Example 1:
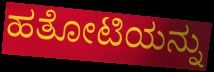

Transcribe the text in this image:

ಹತೋಟಿಯನ್ನು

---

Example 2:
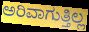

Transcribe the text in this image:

ಅರಿವಾಗುತ್ತಿಲ್ಲ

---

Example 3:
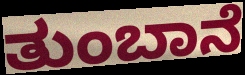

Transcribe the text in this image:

ತುಂಬಾನೆ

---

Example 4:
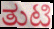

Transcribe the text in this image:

ತುಟಿ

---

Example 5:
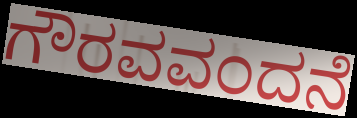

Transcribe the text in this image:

ಗೌರವವಂದನೆ